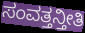
ಸಂವತ್ತನ್ತೀತಿ